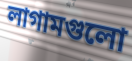
লাগামগুলো